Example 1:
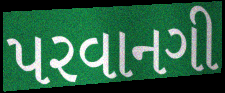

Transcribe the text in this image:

પરવાનગી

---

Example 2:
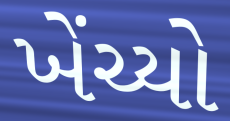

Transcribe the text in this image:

ખેંચ્યો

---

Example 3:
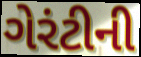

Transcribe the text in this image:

ગેરંટીની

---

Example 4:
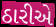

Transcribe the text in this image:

ઠારીએ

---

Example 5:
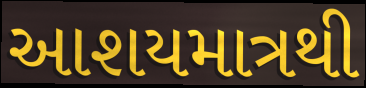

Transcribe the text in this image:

આશયમાત્રથી